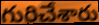
గురిచేశారు